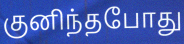
குனிந்தபோது